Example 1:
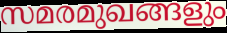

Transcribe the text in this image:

സമരമുഖങ്ങളും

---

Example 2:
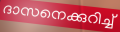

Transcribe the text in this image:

ദാസനെക്കുറിച്ച്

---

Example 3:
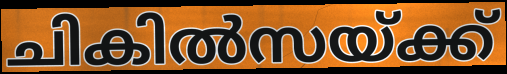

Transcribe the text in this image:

ചികിൽസയ്ക്ക്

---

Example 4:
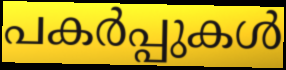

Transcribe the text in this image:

പകർപ്പുകൾ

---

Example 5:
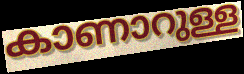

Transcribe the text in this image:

കാണാറുള്ള